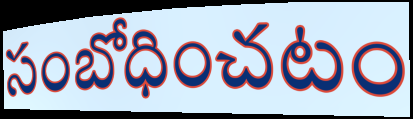
సంబోధించటం